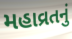
મહાવ્રતનું